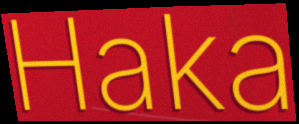
Haka